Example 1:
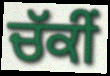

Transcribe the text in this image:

ਚੱਕੀਂ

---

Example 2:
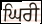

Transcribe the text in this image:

ਘਿਰੀ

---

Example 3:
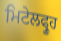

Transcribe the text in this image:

ਮਿਟੇਲਫ੍ਰੂਹ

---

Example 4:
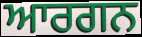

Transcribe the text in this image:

ਆਰਗਨ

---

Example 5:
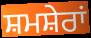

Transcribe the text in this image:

ਸ਼ਮਸ਼ੇਰਾਂ